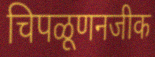
चिपळूणनजीक